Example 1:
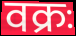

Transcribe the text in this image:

वक्रः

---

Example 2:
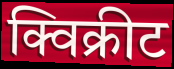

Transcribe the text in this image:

क्विक्रीट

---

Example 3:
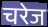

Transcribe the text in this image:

चरेज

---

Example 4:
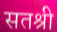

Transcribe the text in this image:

सतश्री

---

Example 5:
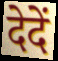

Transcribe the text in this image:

देदें